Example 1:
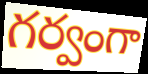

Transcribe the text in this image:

గర్వంగా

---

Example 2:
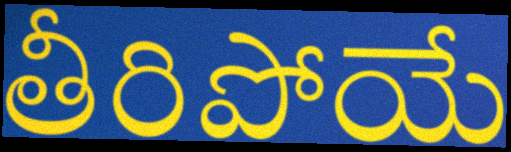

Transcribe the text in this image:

తీరిపోయే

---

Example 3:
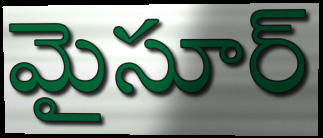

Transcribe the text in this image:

మైసూర్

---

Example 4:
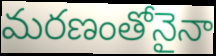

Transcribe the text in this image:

మరణంతోనైనా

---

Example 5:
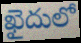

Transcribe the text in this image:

ఖైదులో